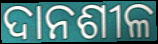
ଦାନଶୀଳ